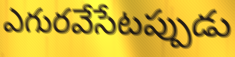
ఎగురవేసేటప్పుడు